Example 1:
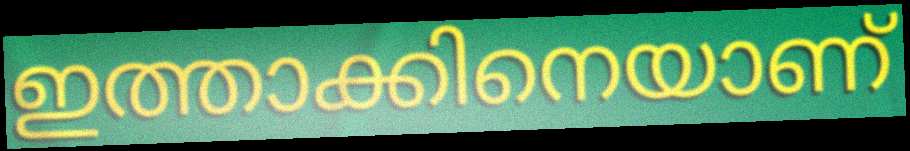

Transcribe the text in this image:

ഇത്താക്കിനെയാണ്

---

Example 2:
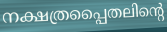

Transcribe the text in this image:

നക്ഷത്രപ്പൈതലിന്റെ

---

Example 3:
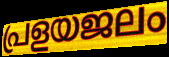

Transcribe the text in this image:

പ്രളയജലം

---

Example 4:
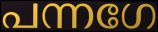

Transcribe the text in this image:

പന്നഗേ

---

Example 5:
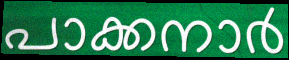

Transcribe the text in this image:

പാക്കനാർ